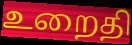
உறைதி